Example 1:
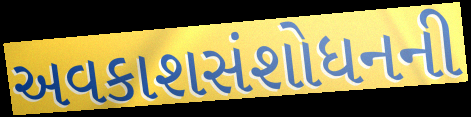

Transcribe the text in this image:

અવકાશસંશોધનની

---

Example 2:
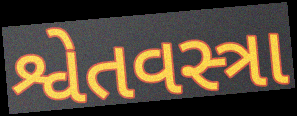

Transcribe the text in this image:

શ્વેતવસ્ત્રા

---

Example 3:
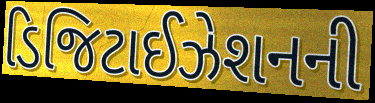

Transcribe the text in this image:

ડિજિટાઈઝેશનની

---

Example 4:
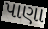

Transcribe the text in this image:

પાણા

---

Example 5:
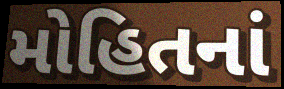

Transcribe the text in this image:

મોહિતનાં